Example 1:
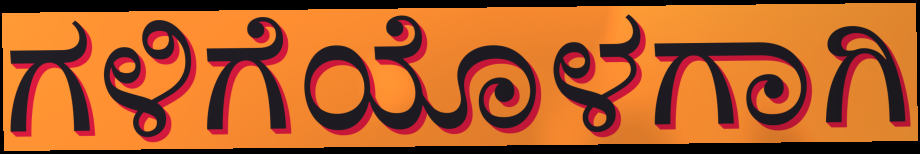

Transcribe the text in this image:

ಗಳಿಗೆಯೊಳಗಾಗಿ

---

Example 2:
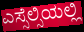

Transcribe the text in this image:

ಎಸ್ಸೆಲ್ಸಿಯಲ್ಲಿ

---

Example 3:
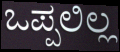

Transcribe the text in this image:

ಒಪ್ಪಲಿಲ್ಲ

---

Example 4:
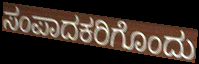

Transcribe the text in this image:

ಸಂಪಾದಕರಿಗೊಂದು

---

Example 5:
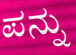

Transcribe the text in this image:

ಪನ್ನು